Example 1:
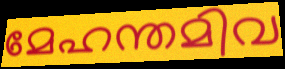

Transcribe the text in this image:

മേഹന്തമിവ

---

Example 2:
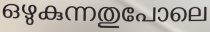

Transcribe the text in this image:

ഒഴുകുന്നതുപോലെ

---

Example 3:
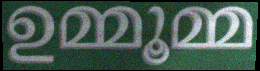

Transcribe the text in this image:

ഉമ്മൂമ്മ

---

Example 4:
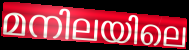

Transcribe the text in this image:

മനിലയിലെ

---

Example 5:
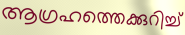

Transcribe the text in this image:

ആഗ്രഹത്തെക്കുറിച്ച്